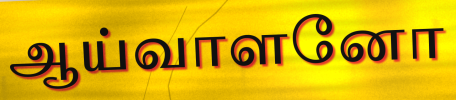
ஆய்வாளனோ